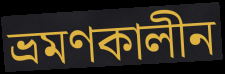
ভ্রমণকালীন